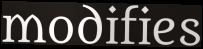
modifies